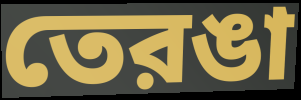
তেরঙা